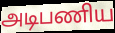
அடிபணிய